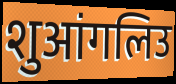
शुआंगलिउ